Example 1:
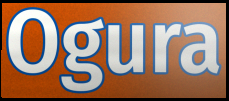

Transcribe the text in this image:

Ogura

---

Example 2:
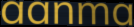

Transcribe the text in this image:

aanma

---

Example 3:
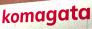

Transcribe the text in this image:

komagata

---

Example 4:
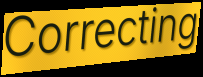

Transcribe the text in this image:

Correcting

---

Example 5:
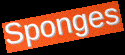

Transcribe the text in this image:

Sponges